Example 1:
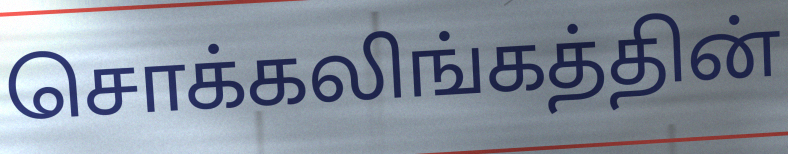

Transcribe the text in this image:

சொக்கலிங்கத்தின்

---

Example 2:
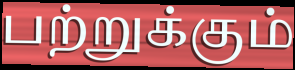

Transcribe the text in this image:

பற்றுக்கும்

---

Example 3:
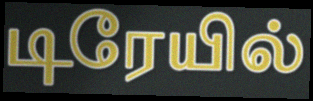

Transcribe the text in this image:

டிரேயில்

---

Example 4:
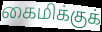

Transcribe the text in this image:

கைமிக்குக்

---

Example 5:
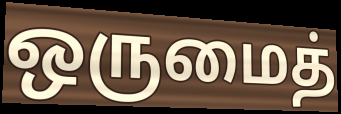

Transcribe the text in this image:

ஒருமைத்